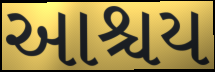
આશ્ચય